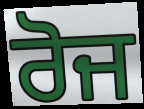
ਰੋਜ